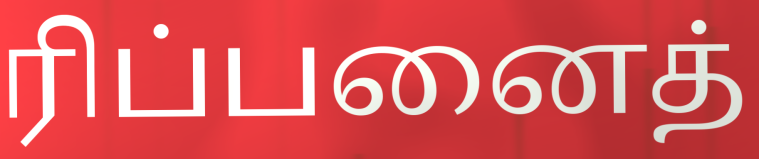
ரிப்பனைத்